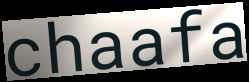
chaafa